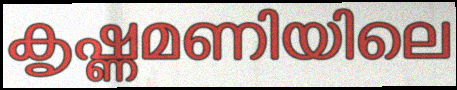
കൃഷ്ണമണിയിലെ